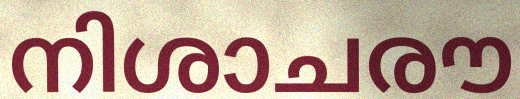
നിശാചരൗ